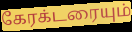
கேரக்டரையும்